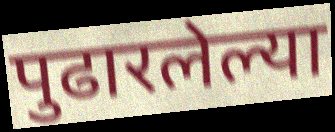
पुढारलेल्या